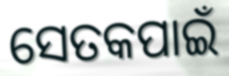
ସେତକପାଇଁ